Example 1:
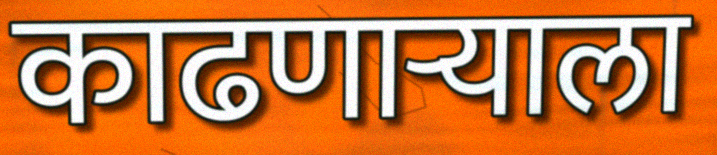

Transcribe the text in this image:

काढणार्‍याला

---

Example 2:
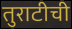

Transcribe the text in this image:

तुराटीची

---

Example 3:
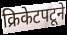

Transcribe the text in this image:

क्रिकेटपटूने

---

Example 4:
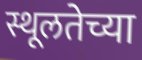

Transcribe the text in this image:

स्थूलतेच्या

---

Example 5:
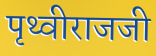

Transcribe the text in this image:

पृथ्वीराजजी